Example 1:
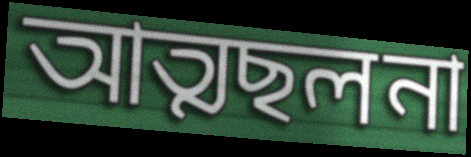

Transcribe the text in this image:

আত্মছলনা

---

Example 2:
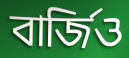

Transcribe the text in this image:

বার্জিও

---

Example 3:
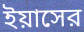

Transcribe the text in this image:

ইয়াসের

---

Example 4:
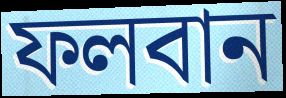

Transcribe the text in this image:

ফলবান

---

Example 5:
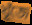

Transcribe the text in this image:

খূঁজে